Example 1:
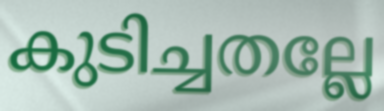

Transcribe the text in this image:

കുടിച്ചതല്ലേ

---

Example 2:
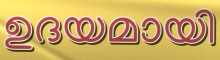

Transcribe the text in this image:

ഉദയമായി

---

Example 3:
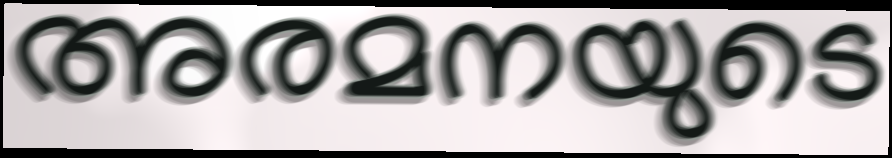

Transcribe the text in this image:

അരമനയുടെ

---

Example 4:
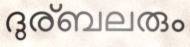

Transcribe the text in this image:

ദുര്ബലരും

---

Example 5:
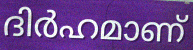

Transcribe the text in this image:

ദിർഹമാണ്